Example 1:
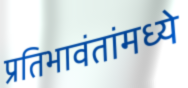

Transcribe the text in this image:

प्रतिभावंतांमध्ये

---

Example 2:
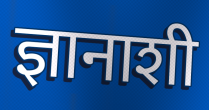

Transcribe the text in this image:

ज्ञानाशी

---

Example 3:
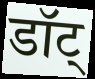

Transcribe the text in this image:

डॉट्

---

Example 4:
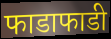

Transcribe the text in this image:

फाडाफाडी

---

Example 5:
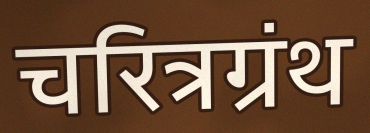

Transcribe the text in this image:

चरित्रग्रंथ